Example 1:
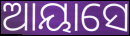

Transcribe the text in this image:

ଆୟାସେ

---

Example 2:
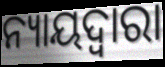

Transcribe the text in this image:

ନ୍ୟାୟଦ୍ୱାରା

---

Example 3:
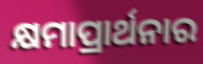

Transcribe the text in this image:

କ୍ଷମାପ୍ରାର୍ଥନାର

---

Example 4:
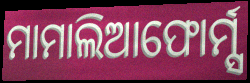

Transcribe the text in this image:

ମାମାଲିଆଫୋର୍ମ୍ସ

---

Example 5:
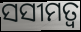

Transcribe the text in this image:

ସସୀମତ୍ୱ